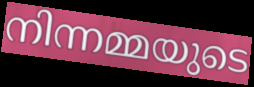
നിന്നമ്മയുടെ